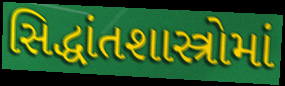
સિદ્ધાંતશાસ્ત્રોમાં